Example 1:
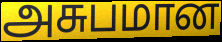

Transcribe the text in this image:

அசுபமான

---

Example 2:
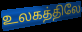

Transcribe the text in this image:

உலகத்திலே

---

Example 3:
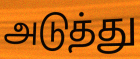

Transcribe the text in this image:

அடுத்து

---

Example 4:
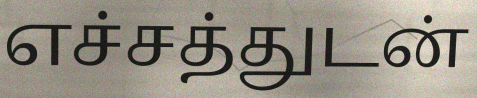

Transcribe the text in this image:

எச்சத்துடன்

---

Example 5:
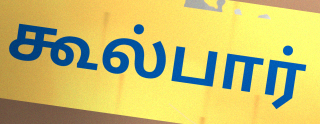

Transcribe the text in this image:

கூல்பார்